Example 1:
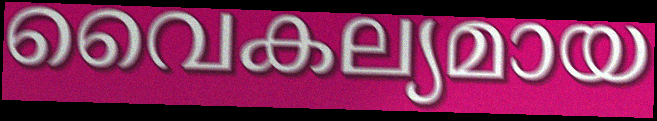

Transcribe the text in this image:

വൈകല്യമായ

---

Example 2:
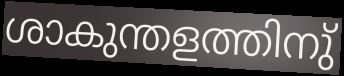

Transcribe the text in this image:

ശാകുന്തളത്തിനു്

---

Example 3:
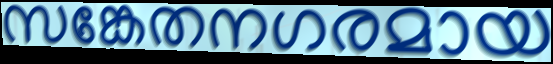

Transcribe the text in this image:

സങ്കേതനഗരമായ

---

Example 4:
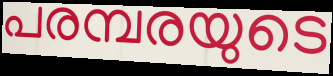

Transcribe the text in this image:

പരമ്പരയുടെ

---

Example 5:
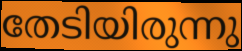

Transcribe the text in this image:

തേടിയിരുന്നു